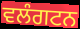
ਵਲੰਗਟਨ